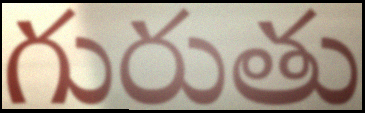
గురుతు